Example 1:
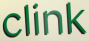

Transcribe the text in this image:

clink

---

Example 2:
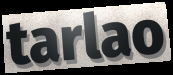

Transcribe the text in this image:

tarlao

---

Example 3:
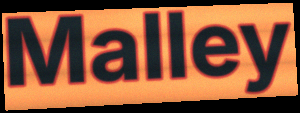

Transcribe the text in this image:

Malley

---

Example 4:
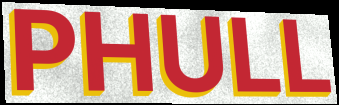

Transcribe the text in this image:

PHULL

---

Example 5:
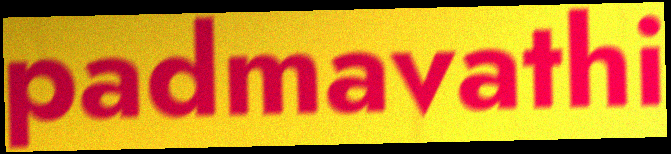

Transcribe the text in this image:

padmavathi